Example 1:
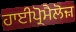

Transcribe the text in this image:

ਹਾਈਪ੍ਰੋਮੈਲੋਜ਼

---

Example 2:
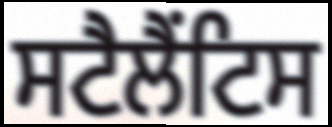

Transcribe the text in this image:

ਸਟੈਲੈਂਟਿਸ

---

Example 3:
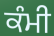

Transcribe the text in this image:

ਕੰਮੀ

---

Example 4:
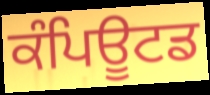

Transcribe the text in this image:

ਕੰਪਿਊਟਡ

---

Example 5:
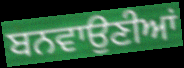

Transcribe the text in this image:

ਬਨਵਾਉਣੀਆਂ